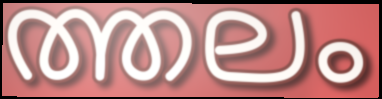
ത്തലം